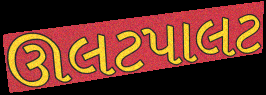
ઊલટપાલટ